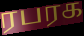
ரபரக